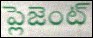
ప్లెజెంట్